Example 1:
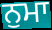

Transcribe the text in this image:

ਨੁਮਾ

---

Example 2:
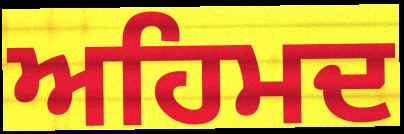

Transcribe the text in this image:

ਅਹਿਮਦ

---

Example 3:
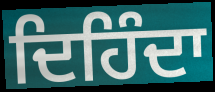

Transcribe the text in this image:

ਦਿਹਿੰਦਾ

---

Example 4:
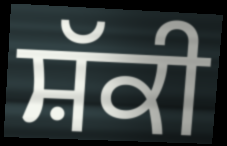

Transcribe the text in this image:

ਸ਼ੱਕੀ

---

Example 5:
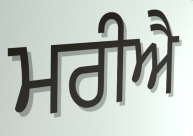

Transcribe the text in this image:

ਮਰੀਐ